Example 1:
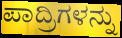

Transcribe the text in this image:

ಪಾದ್ರಿಗಳನ್ನು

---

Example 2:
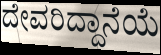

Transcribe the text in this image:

ದೇವರಿದ್ದಾನೆಯೆ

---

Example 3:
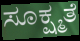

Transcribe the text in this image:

ಸೂಕ್ಷ್ಮತೆ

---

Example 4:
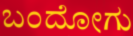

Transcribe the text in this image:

ಬಂದೋಗು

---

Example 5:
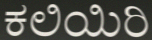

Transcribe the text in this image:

ಕಲಿಯಿರಿ